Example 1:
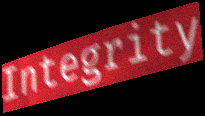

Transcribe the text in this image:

Integrity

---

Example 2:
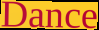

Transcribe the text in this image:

Dance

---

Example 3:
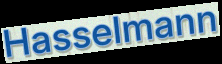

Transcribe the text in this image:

Hasselmann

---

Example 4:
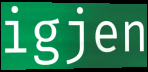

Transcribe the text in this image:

igjen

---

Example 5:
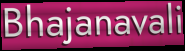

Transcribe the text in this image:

Bhajanavali